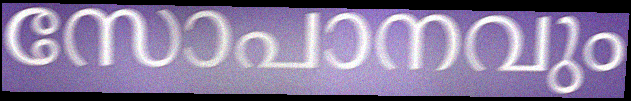
സോപാനവും